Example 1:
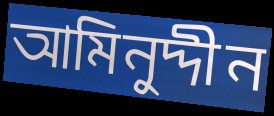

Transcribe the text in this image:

আমিনুদ্দীন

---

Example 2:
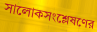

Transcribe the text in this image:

সালোকসংশ্লেষণের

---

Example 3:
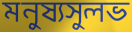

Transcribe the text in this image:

মনুষ্যসুলভ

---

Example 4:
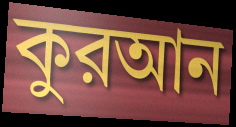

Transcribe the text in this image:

কুরআন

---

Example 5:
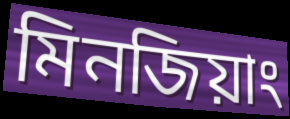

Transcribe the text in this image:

মিনজিয়াং